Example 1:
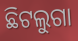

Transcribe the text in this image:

ଛିଟଲୁଗା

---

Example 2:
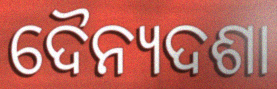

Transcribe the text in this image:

ଦୈନ୍ୟଦଶା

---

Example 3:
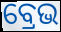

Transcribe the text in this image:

ବ୍ରେଭ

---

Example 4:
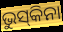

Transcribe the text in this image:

ଭୁସ୍‌କିନା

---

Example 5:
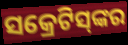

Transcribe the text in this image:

ସକ୍ରେଟିସ୍‌ଙ୍କର